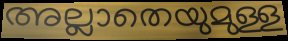
അല്ലാതെയുമുള്ള